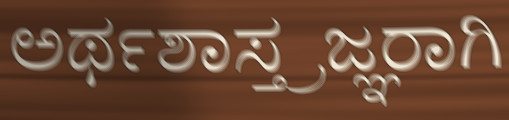
ಅರ್ಥಶಾಸ್ತ್ರಜ್ಞರಾಗಿ